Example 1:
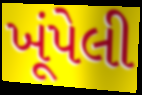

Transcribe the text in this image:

ખૂંપેલી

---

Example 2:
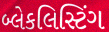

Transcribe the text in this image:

બ્લેકલિસ્ટિંગ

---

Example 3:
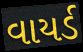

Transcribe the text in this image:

વાયર્ડ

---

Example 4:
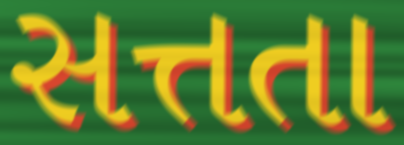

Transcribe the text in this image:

સત્તતા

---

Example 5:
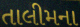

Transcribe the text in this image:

તાલીમના